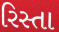
રિસ્તા